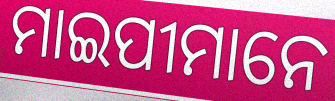
ମାଇପୀମାନେ